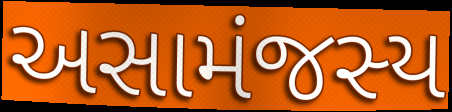
અસામંજસ્ય